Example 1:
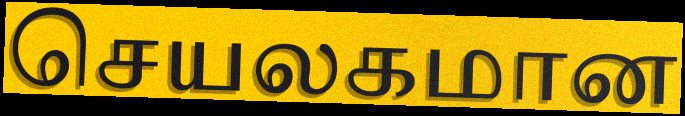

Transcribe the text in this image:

செயலகமான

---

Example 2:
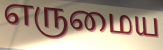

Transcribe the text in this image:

எருமைய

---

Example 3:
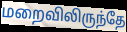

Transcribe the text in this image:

மறைவிலிருந்தே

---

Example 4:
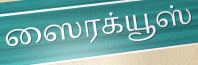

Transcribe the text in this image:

ஸைரக்யூஸ்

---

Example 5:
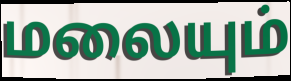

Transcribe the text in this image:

மலையும்